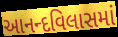
આનન્દવિલાસમાં